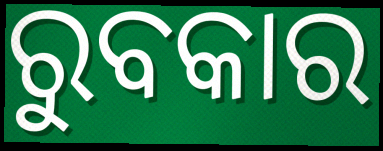
ରୁବକାର